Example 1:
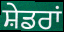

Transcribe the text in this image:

ਸ਼ੇਡਰਾਂ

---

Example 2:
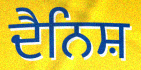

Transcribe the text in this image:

ਦੈਨਿਸ਼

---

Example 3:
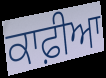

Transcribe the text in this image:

ਕਾਫ਼ੀਆ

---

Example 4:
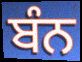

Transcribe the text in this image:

ਬੰਨ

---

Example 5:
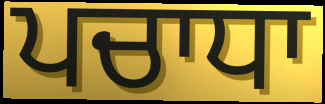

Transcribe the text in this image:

ਪਚਾਧਾ